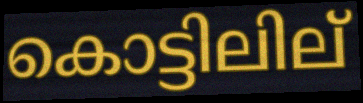
കൊട്ടിലില്